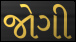
જોગી